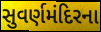
સુવર્ણમંદિરના